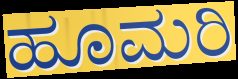
ಹೂಮರಿ